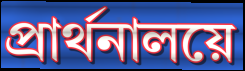
প্রার্থনালয়ে